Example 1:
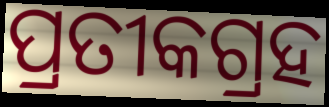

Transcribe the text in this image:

ପ୍ରତୀକଗ୍ରହ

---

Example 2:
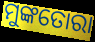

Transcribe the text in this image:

ମୁଙ୍କତୋରା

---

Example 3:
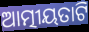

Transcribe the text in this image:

ଆତ୍ମୀୟତାଟି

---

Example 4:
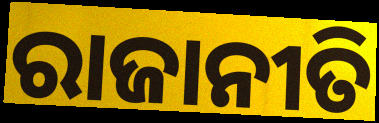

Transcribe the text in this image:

ରାଜାନୀତି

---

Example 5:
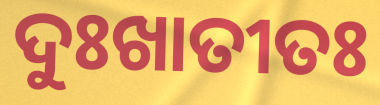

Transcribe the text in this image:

ଦୁଃଖାତୀତଃ